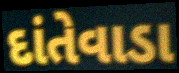
દાંતેવાડા